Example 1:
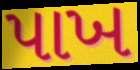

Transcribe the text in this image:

પાખ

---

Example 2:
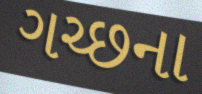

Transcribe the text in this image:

ગચ્છના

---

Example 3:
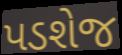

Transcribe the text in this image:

પડશેજ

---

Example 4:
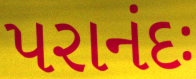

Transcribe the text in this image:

પરાનંદઃ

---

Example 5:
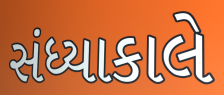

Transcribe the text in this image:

સંધ્યાકાલે